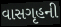
વાસગૃહની